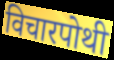
विचारपोथी